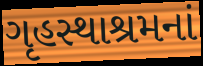
ગૃહસ્થાશ્રમનાં